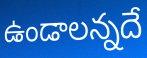
ఉండాలన్నదే